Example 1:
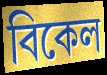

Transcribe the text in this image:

বিকেল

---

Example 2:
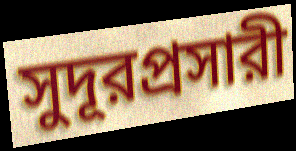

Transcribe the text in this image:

সুদূরপ্রসারী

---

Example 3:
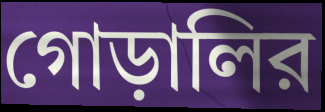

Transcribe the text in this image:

গোড়ালির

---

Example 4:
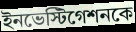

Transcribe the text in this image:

ইনভেস্টিগেশনকে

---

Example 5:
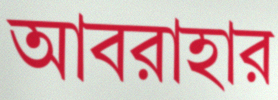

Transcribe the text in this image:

আবরাহার